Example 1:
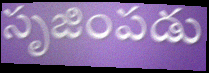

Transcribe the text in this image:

సృజింపడు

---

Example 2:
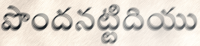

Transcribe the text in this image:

పొందనట్టిదియు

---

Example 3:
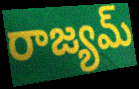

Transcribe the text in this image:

రాజ్యమ్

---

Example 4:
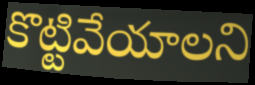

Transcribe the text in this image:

కొట్టివేయాలని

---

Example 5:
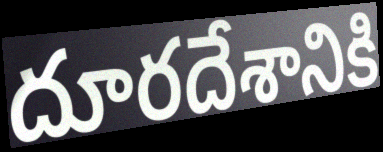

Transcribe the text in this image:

దూరదేశానికి